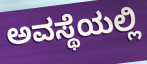
ಅವಸ್ಥೆಯಲ್ಲಿ